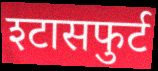
श्टासफुर्ट